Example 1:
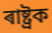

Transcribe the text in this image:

ৰাষ্ট্ৰক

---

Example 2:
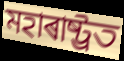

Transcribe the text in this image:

মহাৰাষ্ট্ৰত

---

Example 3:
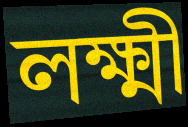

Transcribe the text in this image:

লক্ষ্মী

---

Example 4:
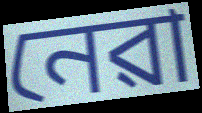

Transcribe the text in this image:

নেৱা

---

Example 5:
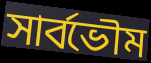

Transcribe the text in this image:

সাৰ্বভৌম